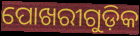
ପୋଖରୀଗୁଡ଼ିକ